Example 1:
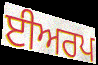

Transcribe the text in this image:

ਈਅਰਪ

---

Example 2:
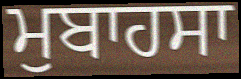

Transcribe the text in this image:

ਮੁਬਾਹਸਾ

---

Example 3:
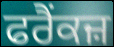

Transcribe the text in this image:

ਫਰੈਂਕਜ਼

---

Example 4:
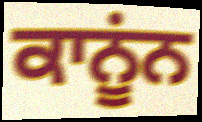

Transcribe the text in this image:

ਕਾਨੂਂਨ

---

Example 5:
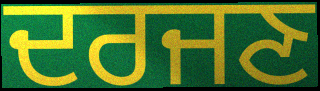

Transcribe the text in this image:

ਦਰਜਣ